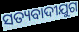
ସତ୍ୟବାଦୀଯୁଗ